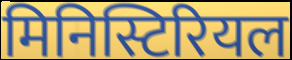
मिनिस्टिरियल